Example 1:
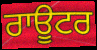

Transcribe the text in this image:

ਰਾਊਟਰ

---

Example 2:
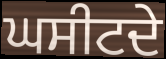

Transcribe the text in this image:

ਘਸੀਟਦੇ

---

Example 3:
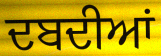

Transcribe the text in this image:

ਦਬਦੀਆਂ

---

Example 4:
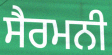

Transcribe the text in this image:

ਸੈਰਮਨੀ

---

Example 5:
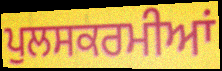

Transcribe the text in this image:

ਪੁਲਸਕਰਮੀਆਂ